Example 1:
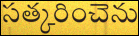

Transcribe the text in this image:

సత్కరించెను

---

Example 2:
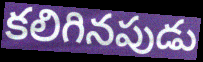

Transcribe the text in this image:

కలిగినపుడు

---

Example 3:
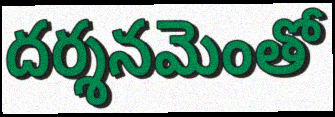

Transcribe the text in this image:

దర్శనమెంతో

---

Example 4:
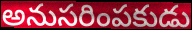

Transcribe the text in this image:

అనుసరింపకుడు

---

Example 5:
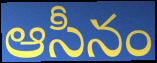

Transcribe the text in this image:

ఆసీనం